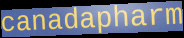
canadapharm